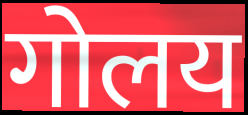
गोलय